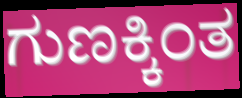
ಗುಣಕ್ಕಿಂತ